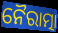
ନୈରାତ୍ମା